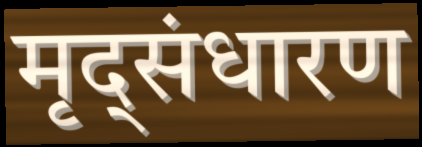
मृद्संधारण